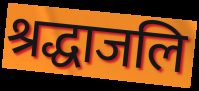
श्रद्धाजलि